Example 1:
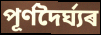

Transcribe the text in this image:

পূৰ্ণদৈৰ্ঘ্যৰ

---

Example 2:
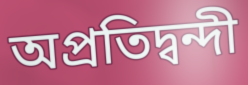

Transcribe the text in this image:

অপ্ৰতিদ্বন্দী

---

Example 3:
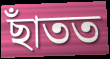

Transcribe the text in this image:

ছাঁতত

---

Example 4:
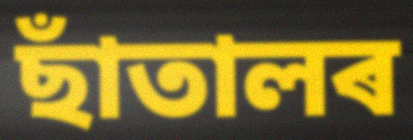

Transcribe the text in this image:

ছাঁতালৰ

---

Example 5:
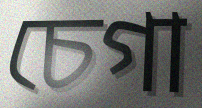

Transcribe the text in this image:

চেগা